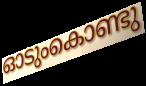
ഓടുംകൊണ്ടു